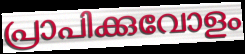
പ്രാപിക്കുവോളം